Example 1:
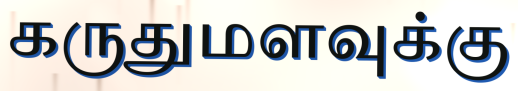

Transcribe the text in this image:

கருதுமளவுக்கு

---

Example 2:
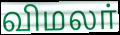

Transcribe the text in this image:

விமலர்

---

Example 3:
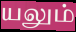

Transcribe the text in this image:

யலும்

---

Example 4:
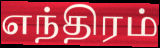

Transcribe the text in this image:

எந்திரம்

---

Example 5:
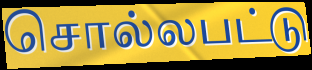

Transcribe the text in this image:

சொல்லபட்டு